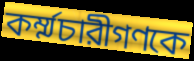
কর্ম্মচারীগণকে